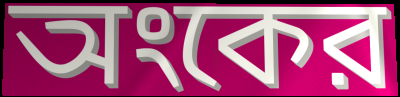
অংকের